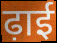
ढ़ाई